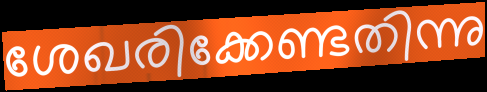
ശേഖരിക്കേണ്ടതിന്നു